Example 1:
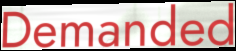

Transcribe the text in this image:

Demanded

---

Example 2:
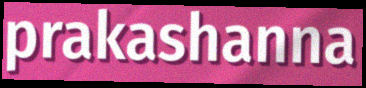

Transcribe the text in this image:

prakashanna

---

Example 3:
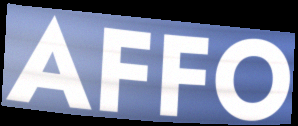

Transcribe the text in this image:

AFFO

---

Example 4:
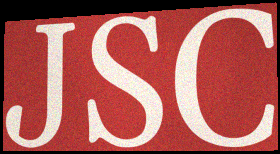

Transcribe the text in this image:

JSC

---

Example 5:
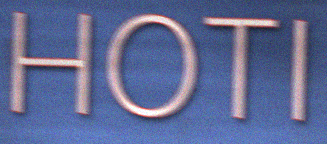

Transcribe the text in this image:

HOTI